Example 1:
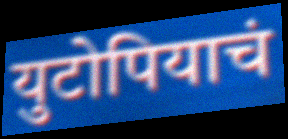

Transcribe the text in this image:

युटोपियाचं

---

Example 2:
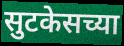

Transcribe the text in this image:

सुटकेसच्या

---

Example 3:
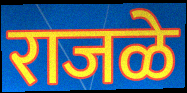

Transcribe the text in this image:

राजळे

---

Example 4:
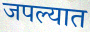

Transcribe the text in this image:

जपल्यात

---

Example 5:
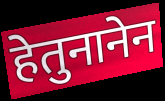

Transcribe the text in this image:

हेतुनानेन